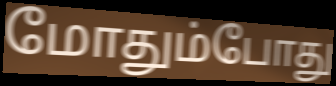
மோதும்போது